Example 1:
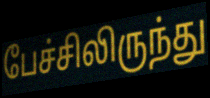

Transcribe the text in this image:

பேச்சிலிருந்து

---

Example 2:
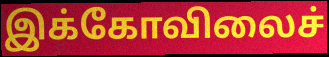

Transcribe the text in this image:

இக்கோவிலைச்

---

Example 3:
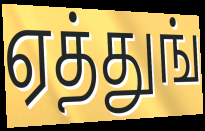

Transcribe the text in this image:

ஏத்துங்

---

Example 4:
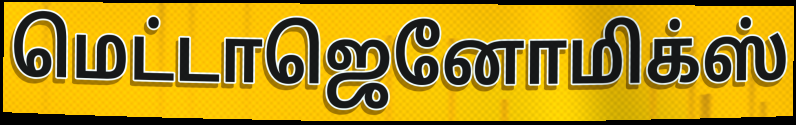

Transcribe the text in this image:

மெட்டாஜெனோமிக்ஸ்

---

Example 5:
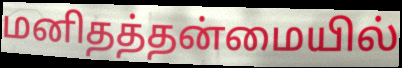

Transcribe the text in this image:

மனிதத்தன்மையில்